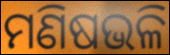
ମଣିଷଭଳି